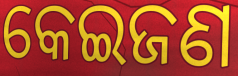
କେଇଜଣ